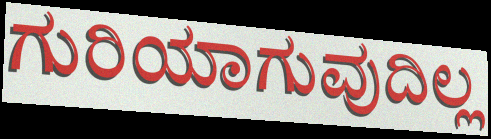
ಗುರಿಯಾಗುವುದಿಲ್ಲ